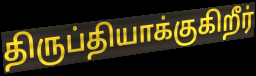
திருப்தியாக்குகிறீர்